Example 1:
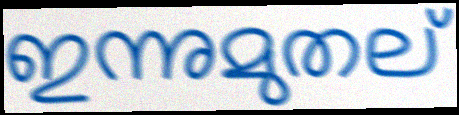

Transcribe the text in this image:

ഇന്നുമുതല്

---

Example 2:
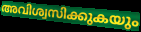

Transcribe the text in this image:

അവിശ്വസിക്കുകയും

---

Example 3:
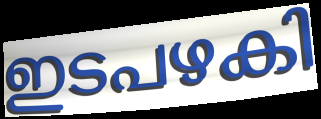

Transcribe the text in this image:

ഇടപഴകി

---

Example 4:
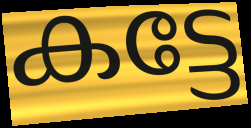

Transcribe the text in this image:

കട്ടേ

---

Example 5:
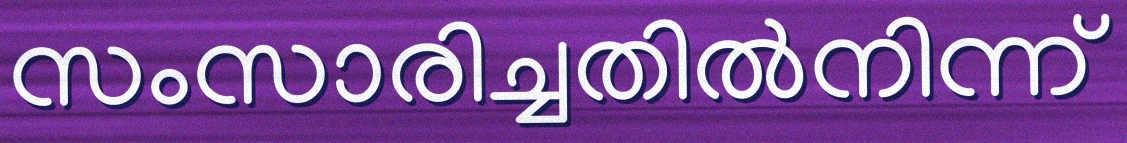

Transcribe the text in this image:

സംസാരിച്ചതിൽനിന്ന്